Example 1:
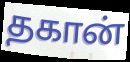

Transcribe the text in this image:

தகான்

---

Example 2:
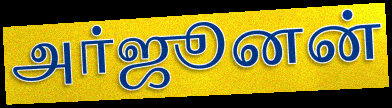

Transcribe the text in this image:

அர்ஜூனன்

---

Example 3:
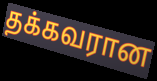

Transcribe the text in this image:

தக்கவரான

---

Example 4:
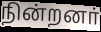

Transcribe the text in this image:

நின்றனர்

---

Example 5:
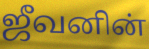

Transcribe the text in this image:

ஜீவனின்